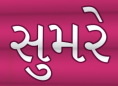
સુમરે